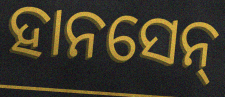
ହାନସେନ୍